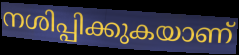
നശിപ്പിക്കുകയാണ്